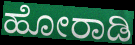
ಹೋರಾಡಿ